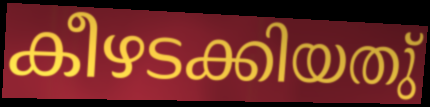
കീഴടക്കിയതു്